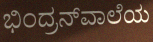
ಭಿಂದ್ರನ್‌ವಾಲೆಯ